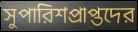
সুপারিশপ্রাপ্তদের